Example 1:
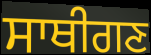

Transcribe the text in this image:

ਸਾਥੀਗਣ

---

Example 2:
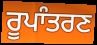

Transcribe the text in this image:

ਰੂਪਾੰਤਰਣ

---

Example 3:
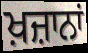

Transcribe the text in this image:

ਖ਼ਜ਼ਾਨਾਂ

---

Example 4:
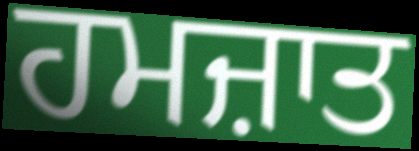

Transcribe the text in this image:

ਹਮਜ਼ਾਤ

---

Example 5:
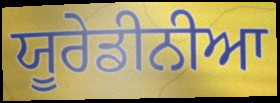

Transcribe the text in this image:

ਯੂਰੇਡੀਨੀਆ